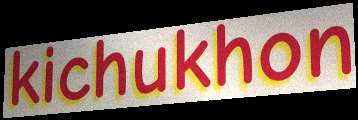
kichukhon